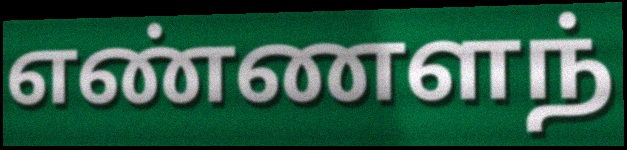
எண்ணளந்